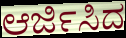
ಆರ್ಜಿಸಿದ